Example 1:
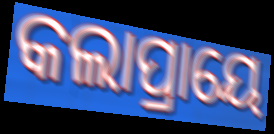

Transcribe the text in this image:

କଲାପ୍ରାୟେ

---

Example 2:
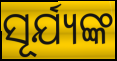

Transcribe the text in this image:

ସୂର୍ଯ୍ୟଙ୍କ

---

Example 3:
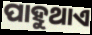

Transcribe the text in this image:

ପାହୁଥାଏ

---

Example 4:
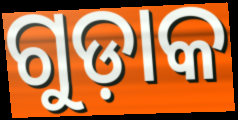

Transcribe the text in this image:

ଗୁଡ଼ାକ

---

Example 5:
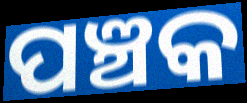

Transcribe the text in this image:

ପଞ୍ଚକ